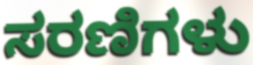
ಸರಣಿಗಳು